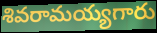
శివరామయ్యగారు